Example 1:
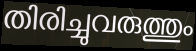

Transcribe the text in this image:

തിരിച്ചുവരുത്തും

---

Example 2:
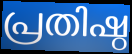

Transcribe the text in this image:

പ്രതിഷ്ഠ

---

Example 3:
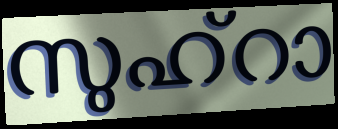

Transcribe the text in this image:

സുഹ്റാ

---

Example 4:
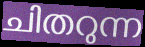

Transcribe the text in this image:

ചിതറുന്ന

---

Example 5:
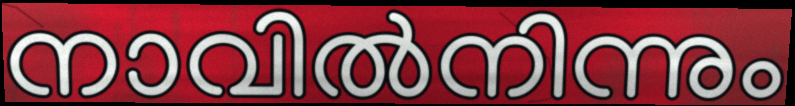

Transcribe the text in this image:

നാവിൽനിന്നും